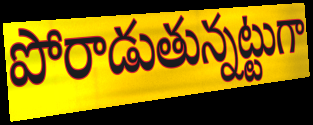
పోరాడుతున్నట్టుగా